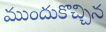
ముందుకొచ్చిన